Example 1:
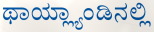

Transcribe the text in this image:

ಥಾಯ್ಲ್ಯಾಂಡಿನಲ್ಲಿ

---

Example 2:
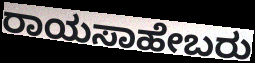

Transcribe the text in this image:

ರಾಯಸಾಹೇಬರು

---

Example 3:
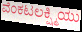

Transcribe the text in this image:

ವೆಂಕಟಲಕ್ಷ್ಮಿಯು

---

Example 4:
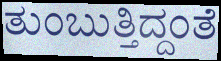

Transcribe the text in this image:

ತುಂಬುತ್ತಿದ್ದಂತೆ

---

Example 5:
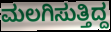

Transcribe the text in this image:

ಮಲಗಿಸುತ್ತಿದ್ದ